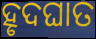
ହୃଦଘାତ